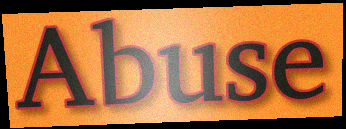
Abuse